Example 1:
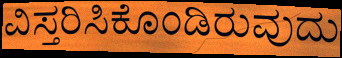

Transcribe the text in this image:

ವಿಸ್ತರಿಸಿಕೊಂಡಿರುವುದು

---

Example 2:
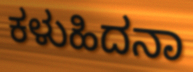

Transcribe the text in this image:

ಕಳುಹಿದನಾ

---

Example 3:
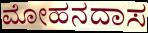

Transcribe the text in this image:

ಮೋಹನದಾಸ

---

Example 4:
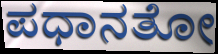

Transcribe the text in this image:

ಪಧಾನತೋ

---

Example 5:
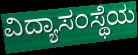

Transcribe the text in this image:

ವಿದ್ಯಾಸಂಸ್ಥೆಯ